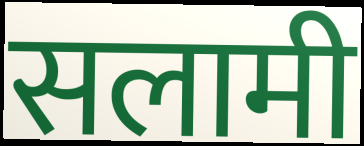
सलामी